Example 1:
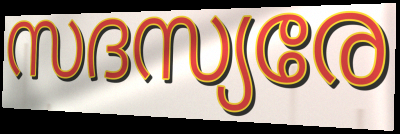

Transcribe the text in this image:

സദസ്യരേ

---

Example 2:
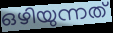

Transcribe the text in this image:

ഒഴിയുന്നത്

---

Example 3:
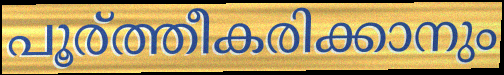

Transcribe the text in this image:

പൂര്ത്തീകരിക്കാനും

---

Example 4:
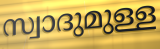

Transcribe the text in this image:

സ്വാദുമുള്ള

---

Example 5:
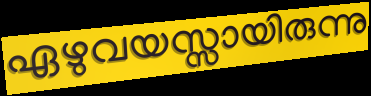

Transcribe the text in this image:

ഏഴുവയസ്സായിരുന്നു